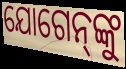
ଯୋଗେନ୍‌ଙ୍କୁ